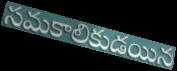
సమకాలికుడయిన